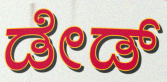
ಡೇಡ್